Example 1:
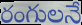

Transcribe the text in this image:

రంగులనే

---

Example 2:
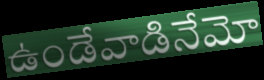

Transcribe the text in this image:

ఉండేవాడినేమో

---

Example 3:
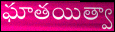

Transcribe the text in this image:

ఘాతయిత్వా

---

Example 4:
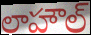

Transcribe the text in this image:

లాహౌల్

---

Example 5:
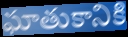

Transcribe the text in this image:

ఘాతుకానికి